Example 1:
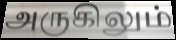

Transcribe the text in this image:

அருகிலும்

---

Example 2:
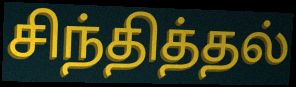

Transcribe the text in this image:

சிந்தித்தல்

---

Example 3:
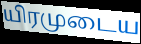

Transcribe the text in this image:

யிரமுடைய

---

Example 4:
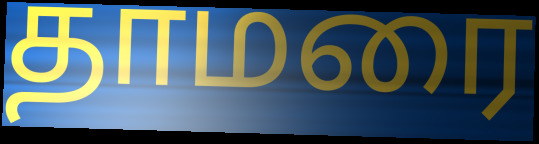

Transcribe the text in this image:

தாமரை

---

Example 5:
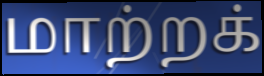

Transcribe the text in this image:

மாற்றக்